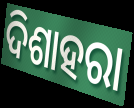
ଦିଶାହରା